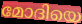
മോദിയെ